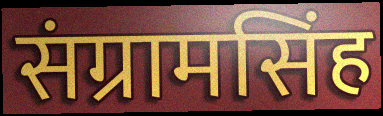
संग्रामसिंह